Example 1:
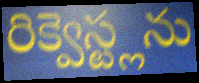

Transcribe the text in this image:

రిక్వెస్ట్లను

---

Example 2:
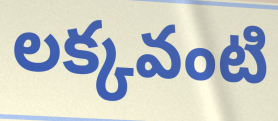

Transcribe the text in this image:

లక్కవంటి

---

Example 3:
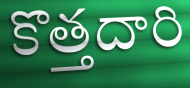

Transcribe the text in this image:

కొత్తదారి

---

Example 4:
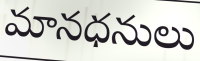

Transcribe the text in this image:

మానధనులు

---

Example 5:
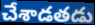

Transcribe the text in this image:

చేశాడతడు